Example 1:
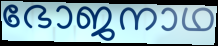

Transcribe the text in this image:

ഭോജനാഥ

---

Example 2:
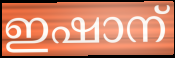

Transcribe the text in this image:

ഇഷാന്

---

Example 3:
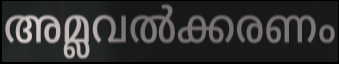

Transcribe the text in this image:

അമ്ലവൽക്കരണം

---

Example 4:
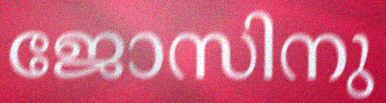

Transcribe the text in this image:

ജോസിനു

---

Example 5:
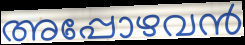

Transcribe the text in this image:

അപ്പോഴവൻ